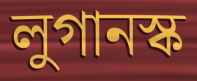
লুগানস্ক